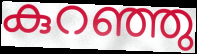
കുറഞ്ഞു